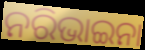
ନରିଭାଇନା